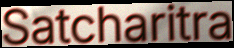
Satcharitra